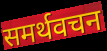
समर्थवचन